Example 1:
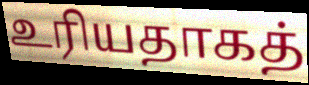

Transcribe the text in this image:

உரியதாகத்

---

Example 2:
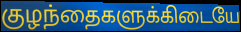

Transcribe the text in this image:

குழந்தைகளுக்கிடையே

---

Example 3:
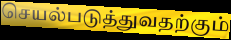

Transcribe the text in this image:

செயல்படுத்துவதற்கும்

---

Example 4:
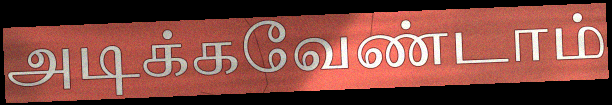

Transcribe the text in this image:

அடிக்கவேண்டாம்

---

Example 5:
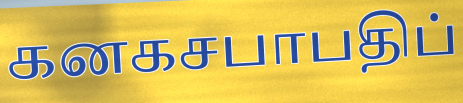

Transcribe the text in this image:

கனகசபாபதிப்